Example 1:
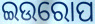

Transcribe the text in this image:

ଇଉରୋପ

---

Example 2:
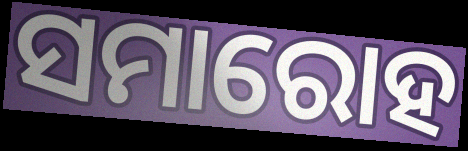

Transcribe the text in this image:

ସମାରୋହ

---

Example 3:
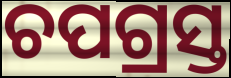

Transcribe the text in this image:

ଚପଗ୍ରସ୍ତ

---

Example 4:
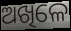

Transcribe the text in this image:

ଅଖିଳେ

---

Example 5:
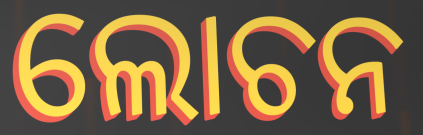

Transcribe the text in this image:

ଲୋଚନ